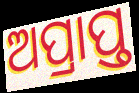
ଅପ୍ରାପ୍ତ